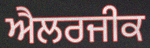
ਐਲਰਜੀਕ